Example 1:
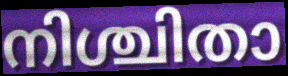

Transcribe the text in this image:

നിശ്ചിതാ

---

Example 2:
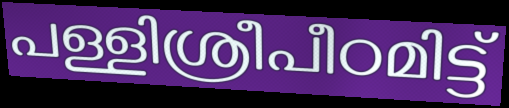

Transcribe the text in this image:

പള്ളിശ്രീപീഠമിട്ട്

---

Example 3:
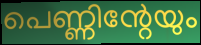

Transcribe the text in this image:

പെണ്ണിന്റേയും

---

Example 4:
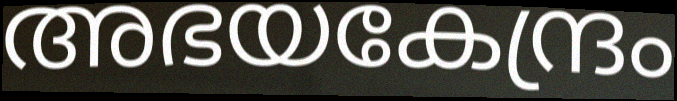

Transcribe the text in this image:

അഭയകേന്ദ്രം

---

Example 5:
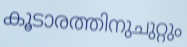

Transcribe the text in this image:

കൂടാരത്തിനുചുറ്റും